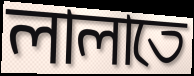
লালাতে